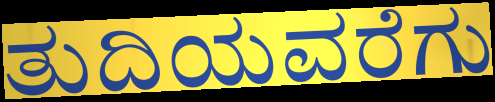
ತುದಿಯವರೆಗು